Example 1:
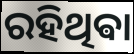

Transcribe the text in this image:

ରହିଥିଵା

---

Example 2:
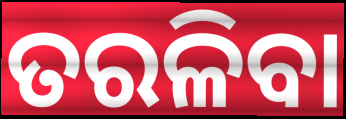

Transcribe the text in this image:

ତରଳିବା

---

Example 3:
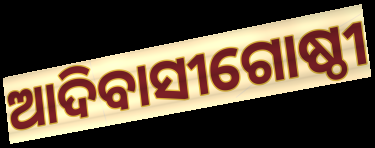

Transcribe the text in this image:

ଆଦିବାସୀଗୋଷ୍ଠୀ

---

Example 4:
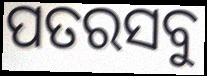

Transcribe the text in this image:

ପତରସବୁ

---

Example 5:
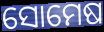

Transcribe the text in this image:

ସୋମେଷ